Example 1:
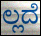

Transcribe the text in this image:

ಲ್ಲದೆ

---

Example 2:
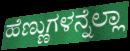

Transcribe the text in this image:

ಹೆಣ್ಣುಗಳನ್ನೆಲ್ಲಾ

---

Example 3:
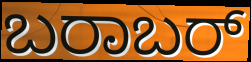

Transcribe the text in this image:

ಬರಾಬರ್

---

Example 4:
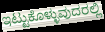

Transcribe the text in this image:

ಇಟ್ಟುಕೊಳ್ಳುವುದರಲ್ಲಿ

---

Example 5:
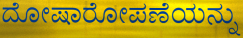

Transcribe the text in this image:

ದೋಷಾರೋಪಣೆಯನ್ನು